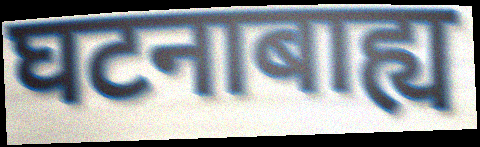
घटनाबाह्य